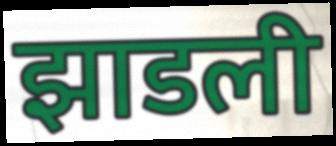
झाडली